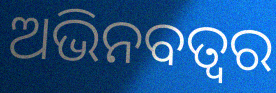
ଅଭିନବତ୍ୱର